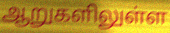
ஆறுகளிலுள்ள